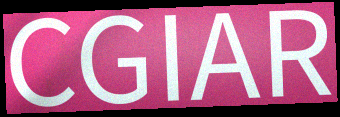
CGIAR